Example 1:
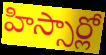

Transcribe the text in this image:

హిస్సార్లో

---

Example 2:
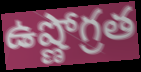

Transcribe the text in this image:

ఉష్ణోగ్రత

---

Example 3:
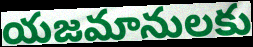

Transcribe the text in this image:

యజమానులకు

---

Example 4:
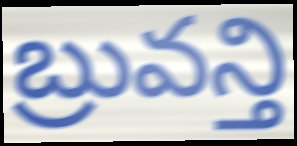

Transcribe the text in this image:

బ్రువన్తి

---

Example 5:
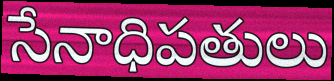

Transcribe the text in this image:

సేనాధిపతులు